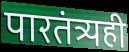
पारतंत्र्यही